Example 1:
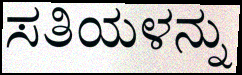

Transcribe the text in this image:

ಸತಿಯಳನ್ನು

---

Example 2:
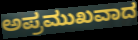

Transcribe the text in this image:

ಅಪ್ರಮುಖವಾದ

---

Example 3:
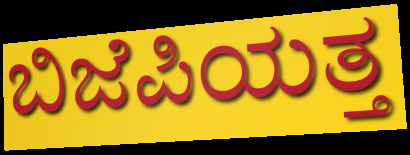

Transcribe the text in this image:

ಬಿಜೆಪಿಯತ್ತ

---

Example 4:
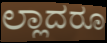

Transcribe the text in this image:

ಲ್ಲಾದರೂ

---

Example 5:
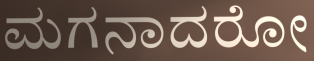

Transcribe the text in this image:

ಮಗನಾದರೋ